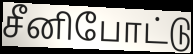
சீனிபோட்டு